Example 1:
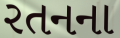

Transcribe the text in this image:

રતનના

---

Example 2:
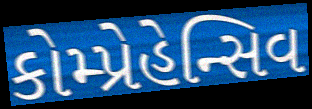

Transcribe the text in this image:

કોમ્પ્રેહેન્સિવ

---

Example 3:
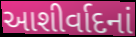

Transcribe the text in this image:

આશીર્વાદનાં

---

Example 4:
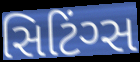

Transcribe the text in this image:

સિટિંગ્સ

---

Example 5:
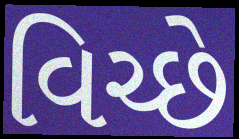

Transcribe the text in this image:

વિચ્છે